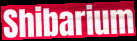
Shibarium